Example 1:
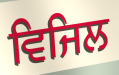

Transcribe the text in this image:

ਵਿਜਿਲ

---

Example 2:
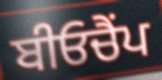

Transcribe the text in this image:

ਬੀਓਚੈਂਪ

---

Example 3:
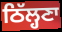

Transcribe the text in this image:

ਠਿੱਲ੍ਹਣਾ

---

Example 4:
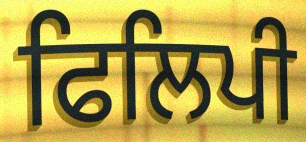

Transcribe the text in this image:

ਫਿਲਿਪੀ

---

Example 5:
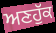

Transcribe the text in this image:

ਅਣਹੁੱਕ